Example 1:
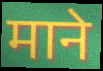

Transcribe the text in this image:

माने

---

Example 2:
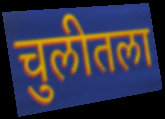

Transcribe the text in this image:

चुलीतला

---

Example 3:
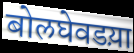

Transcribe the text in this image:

बोलघेवडय़ा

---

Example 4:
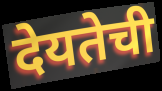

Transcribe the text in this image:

देयतेची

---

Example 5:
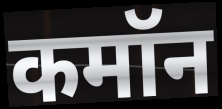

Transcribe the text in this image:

कमॉन